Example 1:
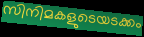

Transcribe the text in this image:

സിനിമകളുടെയടക്കം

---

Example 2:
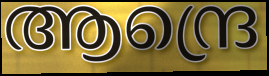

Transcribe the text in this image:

ആന്ദ്രെ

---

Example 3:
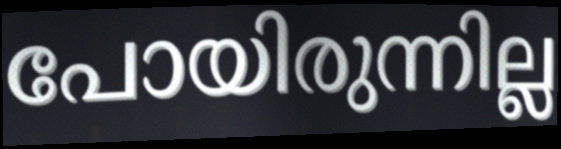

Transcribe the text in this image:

പോയിരുന്നില്ല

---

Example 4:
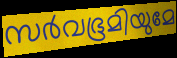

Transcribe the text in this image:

സർവഭൂമിയുമേ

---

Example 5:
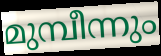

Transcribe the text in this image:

മുമ്പീന്നും